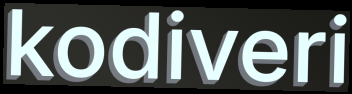
kodiveri